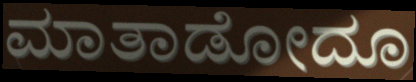
ಮಾತಾಡೋದೂ